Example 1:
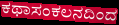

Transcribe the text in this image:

ಕಥಾಸಂಕಲನದಿಂದ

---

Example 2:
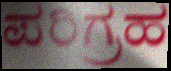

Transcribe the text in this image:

ಪರಿಗ್ರಹ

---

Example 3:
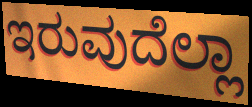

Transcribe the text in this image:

ಇರುವುದೆಲ್ಲಾ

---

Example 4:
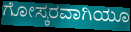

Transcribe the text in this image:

ಗೋಸ್ಕರವಾಗಿಯೂ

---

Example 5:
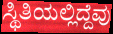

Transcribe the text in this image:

ಸ್ಥಿತಿಯಲ್ಲಿದ್ದೆವು